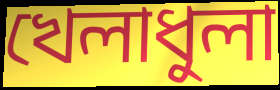
খেলাধুলা